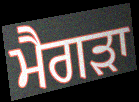
ਮੈਗੜਾ